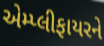
એમ્પ્લીફાયરને